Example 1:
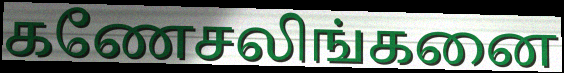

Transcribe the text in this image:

கணேசலிங்கனை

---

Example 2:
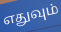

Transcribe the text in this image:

எதுவும்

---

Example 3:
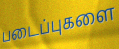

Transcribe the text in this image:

படைப்புகளை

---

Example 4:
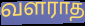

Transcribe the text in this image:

வளராத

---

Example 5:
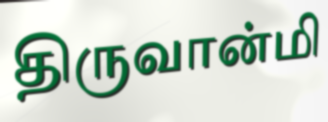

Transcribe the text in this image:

திருவான்மி